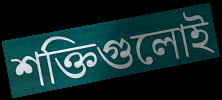
শক্তিগুলোই